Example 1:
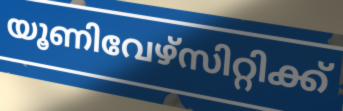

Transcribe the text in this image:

യൂണിവേഴ്സിറ്റിക്ക്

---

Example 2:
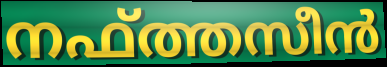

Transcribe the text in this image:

നഫ്ത്തസീൻ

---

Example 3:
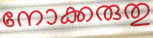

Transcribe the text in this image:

നോക്കരുതു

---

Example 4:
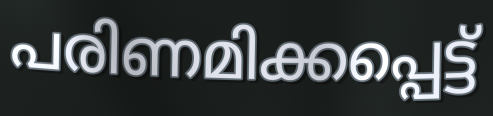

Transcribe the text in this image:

പരിണമിക്കപ്പെട്ട്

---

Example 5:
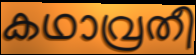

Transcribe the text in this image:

കഥാവ്രതീ